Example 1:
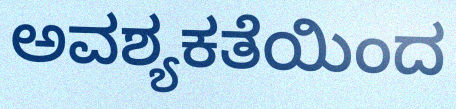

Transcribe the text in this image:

ಅವಶ್ಯಕತೆಯಿಂದ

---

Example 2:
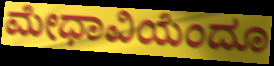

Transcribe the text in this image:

ಮೇಧಾವಿಯೆಂದೂ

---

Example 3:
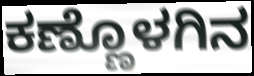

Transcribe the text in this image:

ಕಣ್ಣೊಳಗಿನ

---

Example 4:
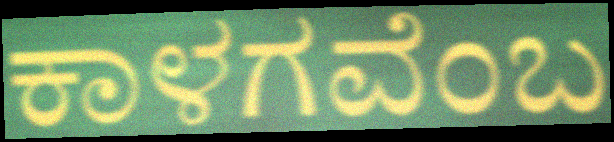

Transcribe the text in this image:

ಕಾಳಗವೆಂಬ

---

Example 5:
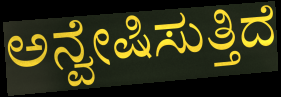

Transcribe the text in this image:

ಅನ್ವೇಷಿಸುತ್ತಿದೆ